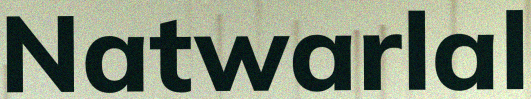
Natwarlal